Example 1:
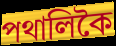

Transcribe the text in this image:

পথালিকৈ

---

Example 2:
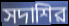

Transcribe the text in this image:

সদাশিৱ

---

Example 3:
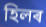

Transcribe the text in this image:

হিলৰ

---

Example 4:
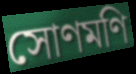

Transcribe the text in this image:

সোণমণি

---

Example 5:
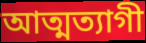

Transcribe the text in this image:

আত্মত্যাগী